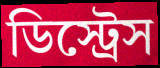
ডিস্ট্রেস